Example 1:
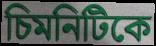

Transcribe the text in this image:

চিমনিটিকে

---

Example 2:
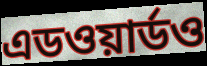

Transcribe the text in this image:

এডওয়ার্ডও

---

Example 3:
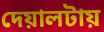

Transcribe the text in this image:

দেয়ালটায়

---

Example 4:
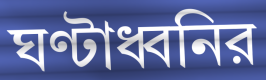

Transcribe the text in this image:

ঘণ্টাধ্বনির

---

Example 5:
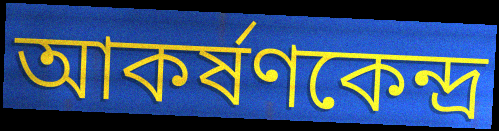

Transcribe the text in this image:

আকর্ষণকেন্দ্র